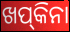
ଖପ୍‌କିନା